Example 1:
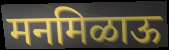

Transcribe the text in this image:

मनमिळाऊ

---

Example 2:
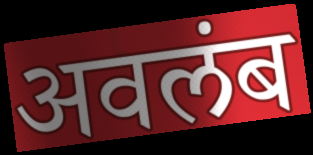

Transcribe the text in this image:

अवलंब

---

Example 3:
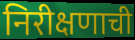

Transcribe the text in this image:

निरीक्षणाची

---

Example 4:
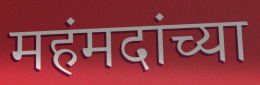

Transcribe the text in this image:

महंमदांच्या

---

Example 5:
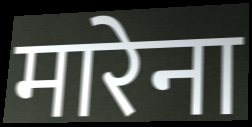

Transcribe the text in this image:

मारेना